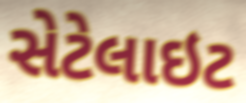
સેટેલાઇટ